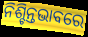
ନିଶ୍ଚିନ୍ତଭାବରେ